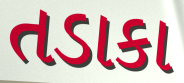
તડાકા